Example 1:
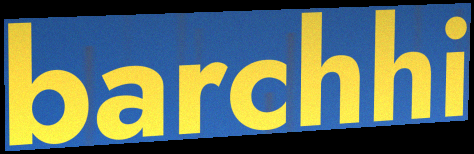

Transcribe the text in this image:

barchhi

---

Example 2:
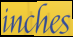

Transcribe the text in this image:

inches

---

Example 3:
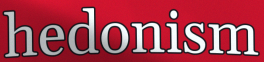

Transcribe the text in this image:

hedonism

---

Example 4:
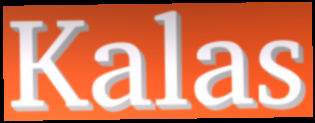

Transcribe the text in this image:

Kalas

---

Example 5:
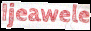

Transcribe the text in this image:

Ijeawele